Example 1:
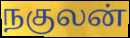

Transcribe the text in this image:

நகுலன்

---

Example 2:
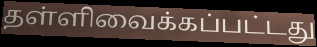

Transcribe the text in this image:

தள்ளிவைக்கப்பட்டது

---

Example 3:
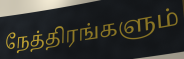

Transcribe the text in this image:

நேத்திரங்களும்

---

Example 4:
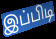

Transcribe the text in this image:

இப்பிடி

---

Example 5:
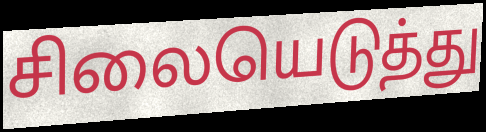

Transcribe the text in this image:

சிலையெடுத்து